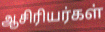
ஆசிரியர்கள்